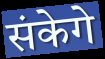
संकेगे